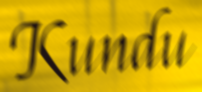
Kundu